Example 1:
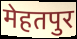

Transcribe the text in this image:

मेहतपुर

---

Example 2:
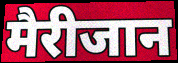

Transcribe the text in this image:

मैरीजान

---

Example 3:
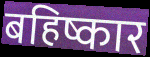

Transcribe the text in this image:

बहिष्‍कार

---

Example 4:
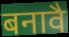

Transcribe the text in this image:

बनावै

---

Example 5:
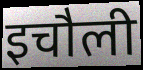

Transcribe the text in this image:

इचौली